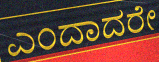
ಎಂದಾದರೇ